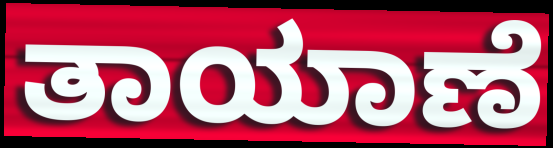
ತಾಯಾಣೆ